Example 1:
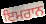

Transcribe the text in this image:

ਇਮਰਾਨ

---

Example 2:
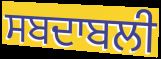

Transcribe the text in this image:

ਸਬਦਾਬਲੀ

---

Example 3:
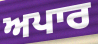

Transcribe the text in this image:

ਅਪਾਰ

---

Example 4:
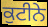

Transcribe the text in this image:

ਕੁਟੀਨੇ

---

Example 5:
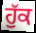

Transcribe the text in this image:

ਹੁੱਕ